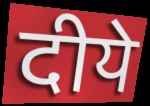
दीये